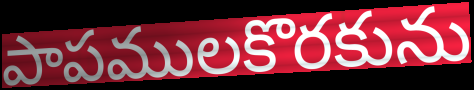
పాపములకొరకును